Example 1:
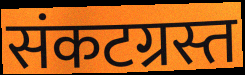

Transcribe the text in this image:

संकटग्रस्‍त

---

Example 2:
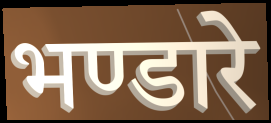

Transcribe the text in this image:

भण्डारे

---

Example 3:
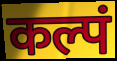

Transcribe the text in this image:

कल्पं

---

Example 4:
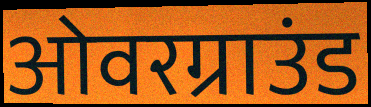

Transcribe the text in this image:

ओवरग्राउंड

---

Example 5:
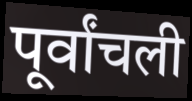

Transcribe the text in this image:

पूर्वांचली